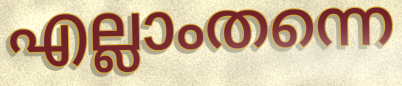
എല്ലാംതന്നെ